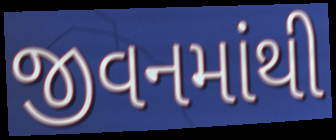
જીવનમાંથી